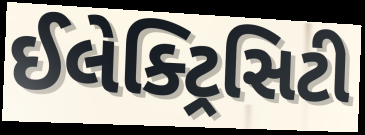
ઈલેક્ટ્રિસિટી